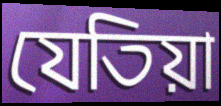
যেতিয়া